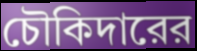
চৌকিদারের